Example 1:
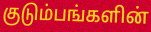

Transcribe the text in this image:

குடும்பங்களின்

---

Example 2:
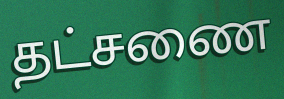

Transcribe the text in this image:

தட்சணை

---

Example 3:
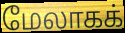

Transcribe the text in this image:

மேலாகக்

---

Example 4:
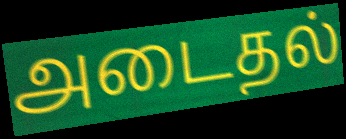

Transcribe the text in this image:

அடைதல்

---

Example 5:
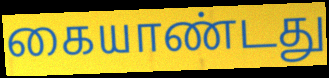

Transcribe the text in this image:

கையாண்டது